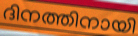
ദിനത്തിനായി